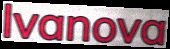
Ivanova